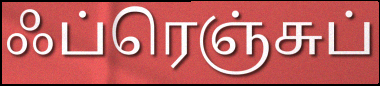
ஃப்ரெஞ்சுப்